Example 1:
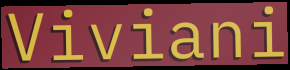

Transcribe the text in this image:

Viviani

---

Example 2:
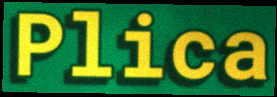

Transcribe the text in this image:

Plica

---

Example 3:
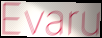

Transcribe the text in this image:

Evaru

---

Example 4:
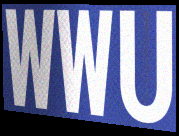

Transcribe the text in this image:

WWU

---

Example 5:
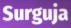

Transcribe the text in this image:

Surguja